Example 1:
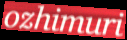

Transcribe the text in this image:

ozhimuri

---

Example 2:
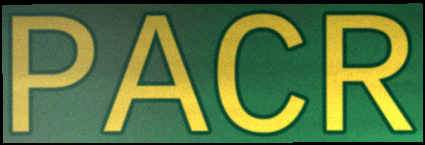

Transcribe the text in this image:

PACR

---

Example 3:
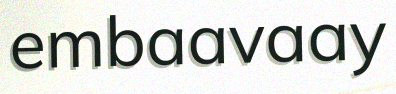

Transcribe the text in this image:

embaavaay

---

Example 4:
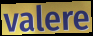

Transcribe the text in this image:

valere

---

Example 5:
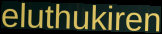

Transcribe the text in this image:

eluthukiren